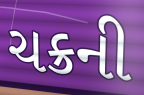
ચક્રની